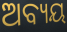
ଅବ୍ୟୟ